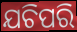
ଯଚିପରି